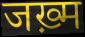
जख़्म